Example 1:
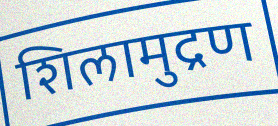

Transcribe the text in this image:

शिलामुद्रण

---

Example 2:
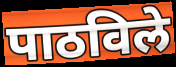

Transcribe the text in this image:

पाठविले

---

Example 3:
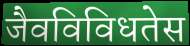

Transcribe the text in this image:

जैवविविधतेस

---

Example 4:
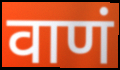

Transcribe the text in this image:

वाणं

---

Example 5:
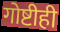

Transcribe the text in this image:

गोष्टीही